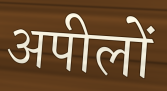
अपीलों